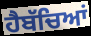
ਹੈਬੱਚਿਆਂ